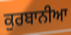
ਕੁਰਬਾਨੀਆ